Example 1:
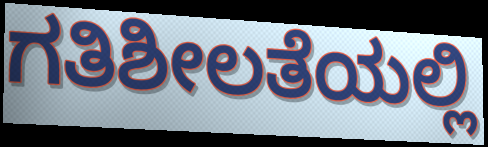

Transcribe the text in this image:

ಗತಿಶೀಲತೆಯಲ್ಲಿ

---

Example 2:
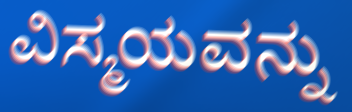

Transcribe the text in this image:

ವಿಸ್ಮಯವನ್ನು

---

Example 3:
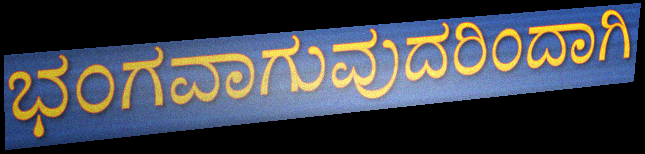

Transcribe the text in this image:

ಭಂಗವಾಗುವುದರಿಂದಾಗಿ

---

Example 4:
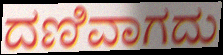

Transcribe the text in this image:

ದಣಿವಾಗದು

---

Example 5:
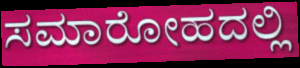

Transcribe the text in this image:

ಸಮಾರೋಹದಲ್ಲಿ